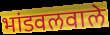
भांडवलवाले